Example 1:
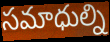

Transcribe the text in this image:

సమాధుల్ని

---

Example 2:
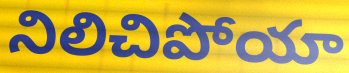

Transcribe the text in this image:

నిలిచిపోయా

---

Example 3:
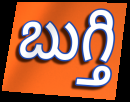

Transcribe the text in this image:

బుగ్తి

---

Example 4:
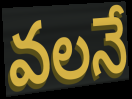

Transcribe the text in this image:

వలనే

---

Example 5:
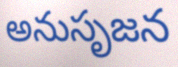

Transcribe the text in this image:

అనుసృజన